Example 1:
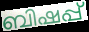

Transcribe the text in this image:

ബിഷപ്പ്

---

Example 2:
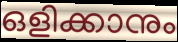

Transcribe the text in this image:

ഒളിക്കാനും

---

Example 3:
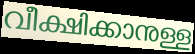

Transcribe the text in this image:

വീക്ഷിക്കാനുള്ള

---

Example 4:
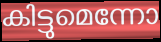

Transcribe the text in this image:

കിട്ടുമെന്നോ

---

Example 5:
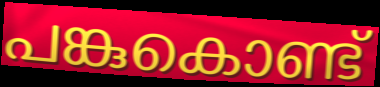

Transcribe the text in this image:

പങ്കുകൊണ്ട്